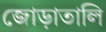
জোড়াতালি